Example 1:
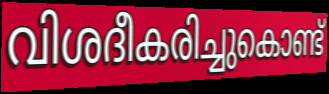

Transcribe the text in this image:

വിശദീകരിച്ചുകൊണ്ട്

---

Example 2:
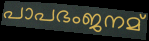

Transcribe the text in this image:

പാപഭംജനമ്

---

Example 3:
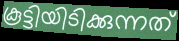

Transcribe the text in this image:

കൂട്ടിയിടിക്കുന്നത്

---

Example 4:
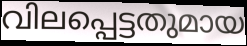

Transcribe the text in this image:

വിലപ്പെട്ടതുമായ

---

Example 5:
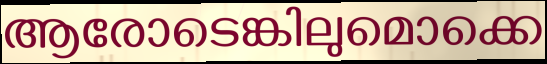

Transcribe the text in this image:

ആരോടെങ്കിലുമൊക്കെ